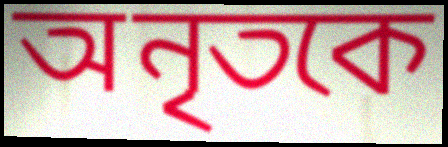
অনৃতকে